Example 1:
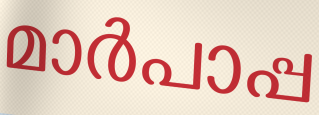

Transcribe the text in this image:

മാർപാപ്പ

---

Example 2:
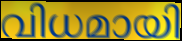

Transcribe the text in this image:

വിധമായി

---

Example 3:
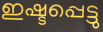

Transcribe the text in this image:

ഇഷ്ടപ്പെട്ടു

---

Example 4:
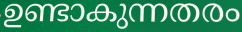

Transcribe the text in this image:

ഉണ്ടാകുന്നതരം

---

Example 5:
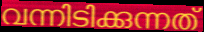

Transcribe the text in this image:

വന്നിടിക്കുന്നത്